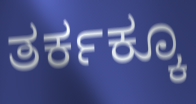
ತರ್ಕಕ್ಕೂ